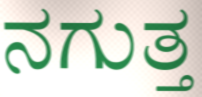
ನಗುತ್ತ